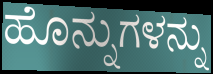
ಹೊನ್ನುಗಳನ್ನು